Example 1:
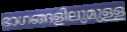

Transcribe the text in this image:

ഭാഗങ്ങളിലുമുള്ള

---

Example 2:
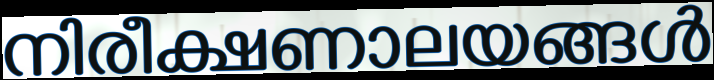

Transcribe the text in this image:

നിരീക്ഷണാലയങ്ങൾ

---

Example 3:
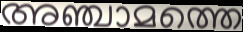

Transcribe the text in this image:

അഞ്ചാമത്തെ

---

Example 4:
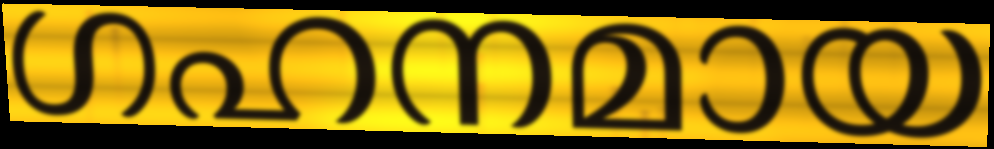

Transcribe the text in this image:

ഗഹനമായ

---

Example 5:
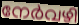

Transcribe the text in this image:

നേർവഴി